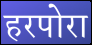
हरपोरा